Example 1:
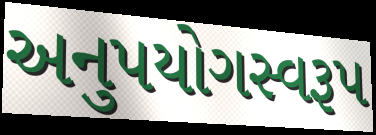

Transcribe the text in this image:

અનુપયોગસ્વરૂપ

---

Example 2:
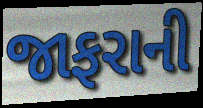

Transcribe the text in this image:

જાફરાની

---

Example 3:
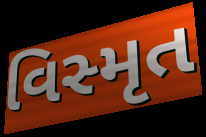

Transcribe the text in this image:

વિસ્મૃત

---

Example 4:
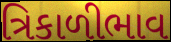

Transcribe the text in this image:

ત્રિકાળીભાવ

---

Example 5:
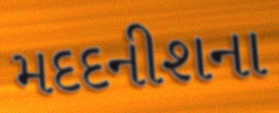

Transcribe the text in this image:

મદદનીશના